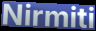
Nirmiti